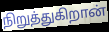
நிறுத்துகிறான்